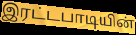
இரட்டபாடியின்